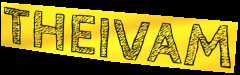
THEIVAM